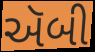
ઍબી